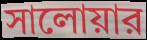
সালোয়ার